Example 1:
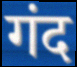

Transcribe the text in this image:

गंद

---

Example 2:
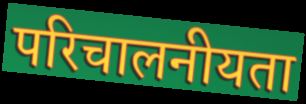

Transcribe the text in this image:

परिचालनीयता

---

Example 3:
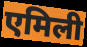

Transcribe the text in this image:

एमिली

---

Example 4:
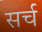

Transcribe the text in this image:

सर्च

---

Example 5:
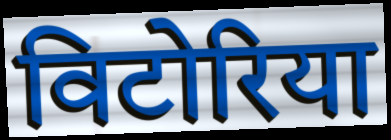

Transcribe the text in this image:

विटोरिया